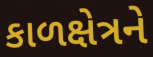
કાળક્ષેત્રને